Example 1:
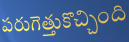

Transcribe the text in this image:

పరుగెత్తుకొచ్చింది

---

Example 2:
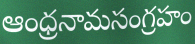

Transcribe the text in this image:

ఆంధ్రనామసంగ్రహం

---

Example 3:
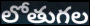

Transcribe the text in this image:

లోతుగల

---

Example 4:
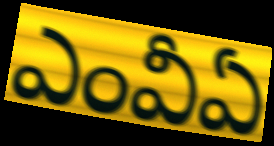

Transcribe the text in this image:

ఎంవీఏ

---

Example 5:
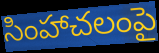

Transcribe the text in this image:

సింహాచలంపై